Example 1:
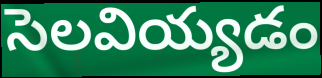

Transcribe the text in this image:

సెలవియ్యడం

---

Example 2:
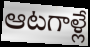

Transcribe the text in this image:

ఆటగాళ్లే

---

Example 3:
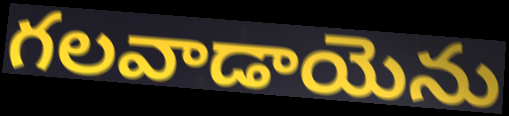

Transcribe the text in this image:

గలవాడాయెను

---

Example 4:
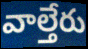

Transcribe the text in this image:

వాల్తేరు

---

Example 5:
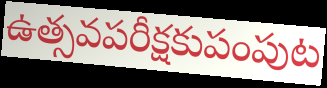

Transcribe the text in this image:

ఉత్సవపరీక్షకుపంపుట